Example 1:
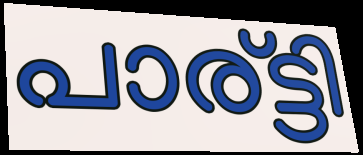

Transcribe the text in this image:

പാര്ട്ടി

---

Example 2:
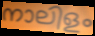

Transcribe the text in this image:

നാലിളം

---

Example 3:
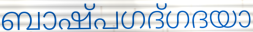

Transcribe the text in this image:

ബാഷ്പഗദ്ഗദയാ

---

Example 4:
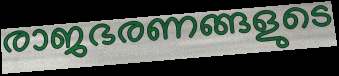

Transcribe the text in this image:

രാജഭരണങ്ങളുടെ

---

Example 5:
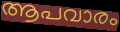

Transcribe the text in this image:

ആപവാരം